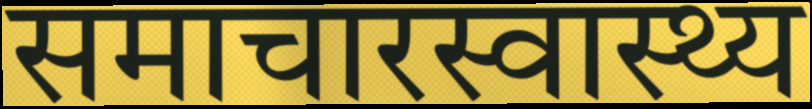
समाचारस्वास्थ्य